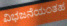
ವಿಭಜನೆಯಂತಹ